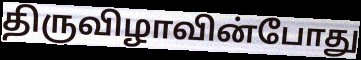
திருவிழாவின்போது